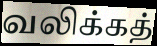
வலிக்கத்